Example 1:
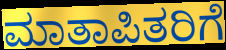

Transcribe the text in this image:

ಮಾತಾಪಿತರಿಗೆ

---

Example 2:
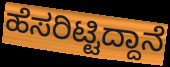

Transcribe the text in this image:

ಹೆಸರಿಟ್ಟಿದ್ದಾನೆ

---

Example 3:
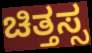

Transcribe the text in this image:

ಚಿತ್ತಸ್ಸ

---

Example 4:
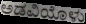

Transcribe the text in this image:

ಅಡವಿಯೊಳು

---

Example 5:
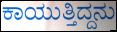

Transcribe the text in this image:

ಕಾಯುತ್ತಿದ್ದನು